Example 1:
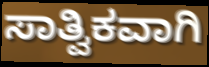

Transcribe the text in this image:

ಸಾತ್ವಿಕವಾಗಿ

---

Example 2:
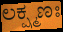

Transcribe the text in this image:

ಲಕ್ಷ್ಮಣಃ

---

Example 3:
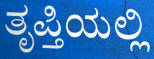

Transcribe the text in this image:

ತೃಪ್ತಿಯಲ್ಲಿ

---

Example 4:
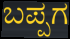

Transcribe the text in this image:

ಬಪ್ಪಗ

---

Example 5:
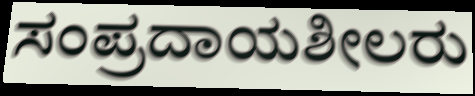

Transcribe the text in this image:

ಸಂಪ್ರದಾಯಶೀಲರು